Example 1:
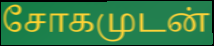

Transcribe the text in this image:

சோகமுடன்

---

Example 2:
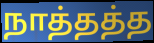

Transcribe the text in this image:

நாத்தத்த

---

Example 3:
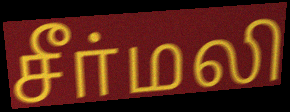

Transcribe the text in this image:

சீர்மலி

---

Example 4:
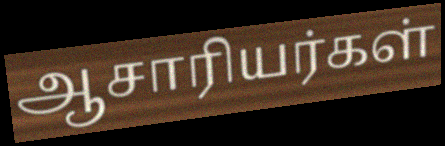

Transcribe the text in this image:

ஆசாரியர்கள்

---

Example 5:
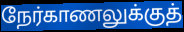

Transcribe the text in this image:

நேர்காணலுக்குத்